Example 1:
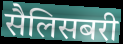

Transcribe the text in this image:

सैलिसबरी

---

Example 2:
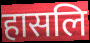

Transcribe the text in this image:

हासलि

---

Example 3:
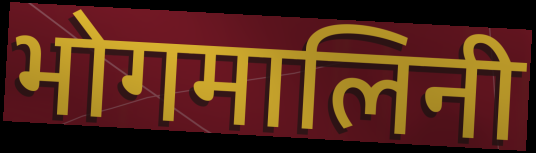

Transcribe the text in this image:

भोगमालिनी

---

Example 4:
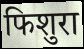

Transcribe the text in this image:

फिशुरा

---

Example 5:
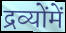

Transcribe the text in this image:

द्रव्योंमें